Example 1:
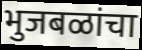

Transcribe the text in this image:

भुजबळांचा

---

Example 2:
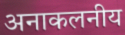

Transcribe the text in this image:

अनाकलनीय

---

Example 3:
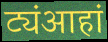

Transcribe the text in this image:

ट्यंआहां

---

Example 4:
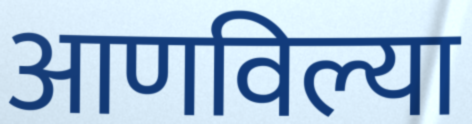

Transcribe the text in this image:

आणविल्या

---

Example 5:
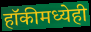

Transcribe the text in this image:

हॉकीमध्येही